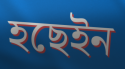
হছেইন